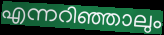
എന്നറിഞ്ഞാലും